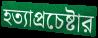
হত্যাপ্রচেষ্টার